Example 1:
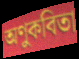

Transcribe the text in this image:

অণুকবিতা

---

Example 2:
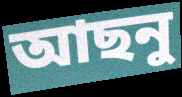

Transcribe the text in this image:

আছনু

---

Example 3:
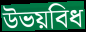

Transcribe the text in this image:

উভয়বিধ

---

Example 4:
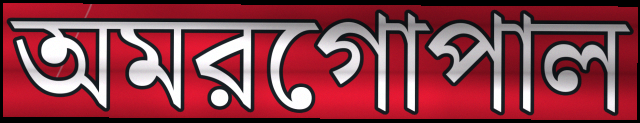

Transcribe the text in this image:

অমরগোপাল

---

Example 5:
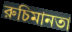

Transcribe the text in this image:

রুচিমানতা